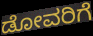
ಡೋವರಿಗೆ